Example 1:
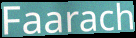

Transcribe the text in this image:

Faarach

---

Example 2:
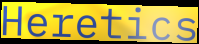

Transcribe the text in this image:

Heretics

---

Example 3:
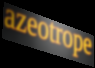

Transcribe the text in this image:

azeotrope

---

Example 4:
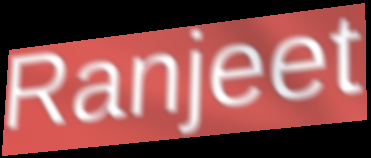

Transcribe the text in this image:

Ranjeet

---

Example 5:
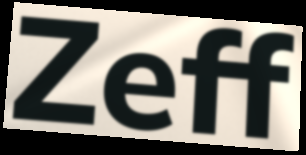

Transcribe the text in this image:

Zeff